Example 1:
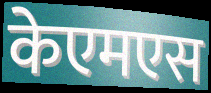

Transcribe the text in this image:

केएमएस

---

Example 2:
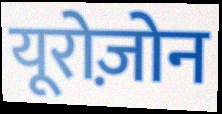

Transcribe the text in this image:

यूरोज़ोन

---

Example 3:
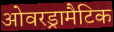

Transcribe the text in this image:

ओवरड्रामैटिक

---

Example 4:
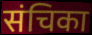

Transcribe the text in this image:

संचिका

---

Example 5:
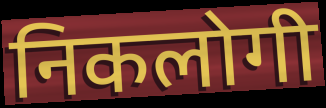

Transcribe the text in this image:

निकलोगी